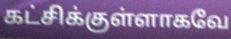
கட்சிக்குள்ளாகவே